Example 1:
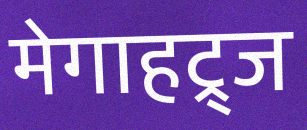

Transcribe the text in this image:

मेगाहट्र्ज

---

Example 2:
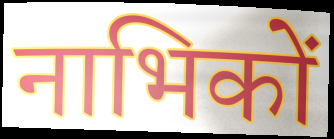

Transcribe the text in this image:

नाभिकों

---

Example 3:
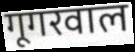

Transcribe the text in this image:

गूगरवाल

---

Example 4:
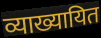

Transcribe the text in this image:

व्याख्यायित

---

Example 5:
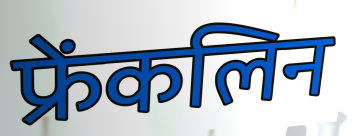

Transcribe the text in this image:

फ्रेंकलिन